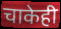
चाकेही